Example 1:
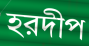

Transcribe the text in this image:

হরদীপ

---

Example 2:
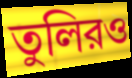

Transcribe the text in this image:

তুলিরও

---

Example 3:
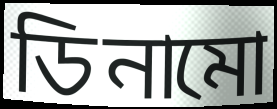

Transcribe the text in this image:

ডিনামো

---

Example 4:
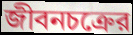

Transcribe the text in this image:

জীবনচক্রের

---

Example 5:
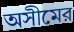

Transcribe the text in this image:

অসীমের